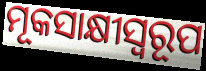
ମୂକସାକ୍ଷୀସ୍ୱରୂପ